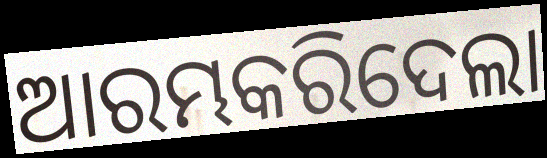
ଆରମ୍ଭକରିଦେଲା